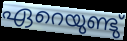
ഏറെയുണ്ടു്